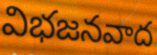
విభజనవాద